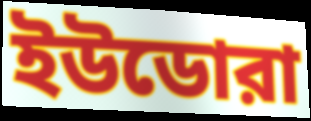
ইউডোরা